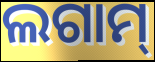
ଲଗାମ୍